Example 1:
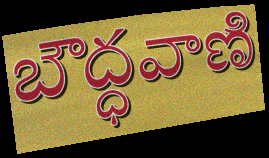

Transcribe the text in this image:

బౌద్ధవాణి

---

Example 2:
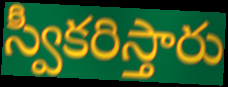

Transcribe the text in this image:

స్వీకరిస్తారు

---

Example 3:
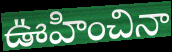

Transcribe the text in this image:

ఊహించినా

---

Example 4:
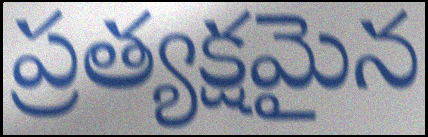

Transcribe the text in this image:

ప్రత్యక్షమైన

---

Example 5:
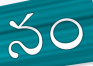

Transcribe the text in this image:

నం